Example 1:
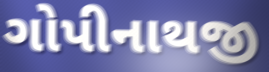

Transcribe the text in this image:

ગોપીનાથજી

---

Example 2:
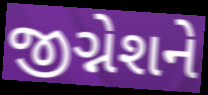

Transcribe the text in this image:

જીગ્નેશને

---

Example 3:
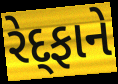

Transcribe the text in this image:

રેદ્ફાને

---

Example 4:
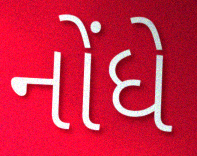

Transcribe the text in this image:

નોંધે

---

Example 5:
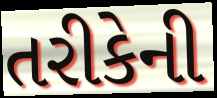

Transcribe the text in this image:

તરીકેની